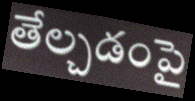
తేల్చడంపై